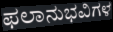
ಫಲಾನುಭವಿಗಳ